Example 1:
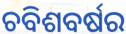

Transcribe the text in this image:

ଚବିଶବର୍ଷର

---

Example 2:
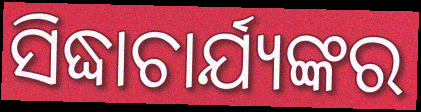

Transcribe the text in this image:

ସିଦ୍ଧାଚାର୍ଯ୍ୟଙ୍କର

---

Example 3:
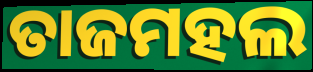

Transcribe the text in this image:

ତାଜମହଲ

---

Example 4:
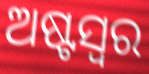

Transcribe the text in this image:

ଅଷ୍ଟସ୍ୱର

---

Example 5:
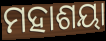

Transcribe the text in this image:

ମହାଶୟା